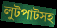
লুটপাটসহ